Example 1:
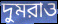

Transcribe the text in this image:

দুমরাও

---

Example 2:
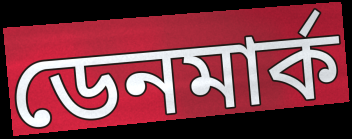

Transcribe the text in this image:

ডেনমার্ক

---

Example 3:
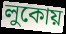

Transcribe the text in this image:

লুকোয়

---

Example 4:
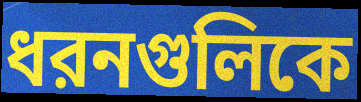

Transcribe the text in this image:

ধরনগুলিকে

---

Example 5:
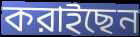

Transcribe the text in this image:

করাইছেন